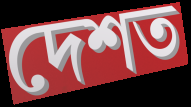
দেশত